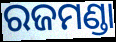
ରଜମଣ୍ଡା